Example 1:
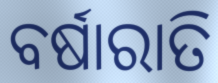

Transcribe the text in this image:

ବର୍ଷାରାତି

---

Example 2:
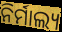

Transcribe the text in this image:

ନିର୍ମାଲ୍ୟ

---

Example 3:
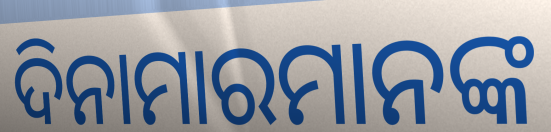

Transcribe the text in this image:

ଦିନାମାରମାନଙ୍କ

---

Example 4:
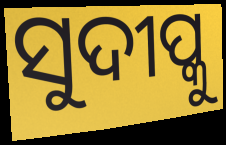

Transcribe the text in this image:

ସୁଦୀପ୍କୁ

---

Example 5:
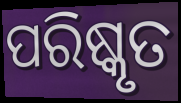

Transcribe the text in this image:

ପରିଷ୍କୃତ